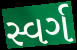
સ્વર્ગ